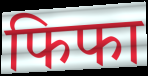
फिफा